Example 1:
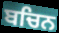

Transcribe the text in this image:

ਬਚਿਨ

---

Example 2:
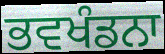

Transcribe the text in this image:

ਭਵਖੰਡਨਾ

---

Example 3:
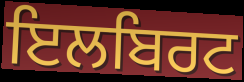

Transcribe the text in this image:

ਇਲਬਿਰਟ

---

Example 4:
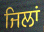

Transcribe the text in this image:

ਜਿਲਾਂ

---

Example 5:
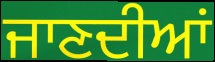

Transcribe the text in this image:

ਜਾਣਦੀਆਂ